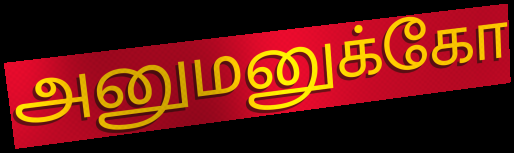
அனுமனுக்கோ